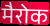
मैरोक